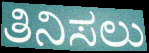
ತಿನಿಸಲು